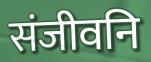
संजीवनि